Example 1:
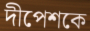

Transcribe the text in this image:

দীপেশকে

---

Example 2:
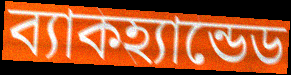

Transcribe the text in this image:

ব্যাকহ্যান্ডেড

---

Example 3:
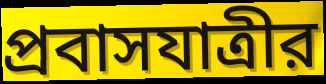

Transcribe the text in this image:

প্রবাসযাত্রীর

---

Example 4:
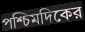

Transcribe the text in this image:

পশ্চিমদিকের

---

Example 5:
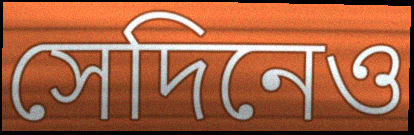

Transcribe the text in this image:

সেদিনেও